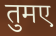
तुमए